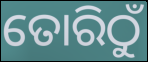
ତୋରିଠୁଁ